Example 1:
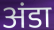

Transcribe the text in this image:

अंडा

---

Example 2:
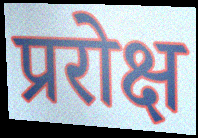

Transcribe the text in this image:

प्ररोक्ष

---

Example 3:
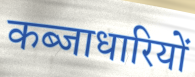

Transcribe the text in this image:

कब्जाधारियों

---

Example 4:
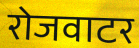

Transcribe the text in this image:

रोजवाटर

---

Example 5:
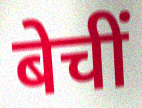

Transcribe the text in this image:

बेचीं